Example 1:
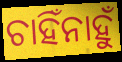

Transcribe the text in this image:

ଚାହିଁନାହୁଁ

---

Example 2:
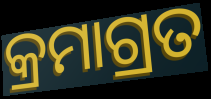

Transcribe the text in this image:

କ୍ରମାଗ୍ରତ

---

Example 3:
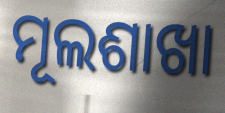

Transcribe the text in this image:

ମୂଲଶାଖା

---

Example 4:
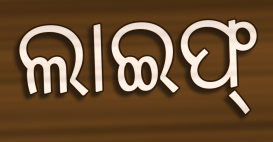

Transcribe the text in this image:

ଲାଇଫ୍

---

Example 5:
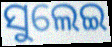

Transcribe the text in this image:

ସୁଲେଇ